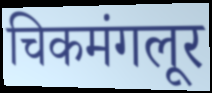
चिकमंगलूर